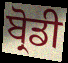
ਬ੍ਰੋਡੀ